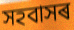
সহবাসৰ